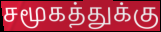
சமூகத்துக்கு